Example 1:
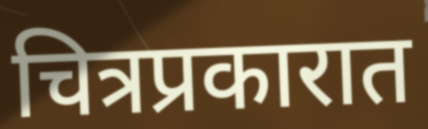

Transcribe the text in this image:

चित्रप्रकारात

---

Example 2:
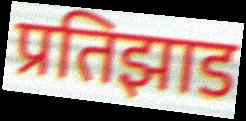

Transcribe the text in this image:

प्रतिझाड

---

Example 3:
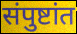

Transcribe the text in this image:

संपुष्टांत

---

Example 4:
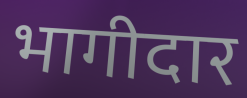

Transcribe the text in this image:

भागीदार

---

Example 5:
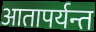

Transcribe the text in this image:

आतापर्यन्त